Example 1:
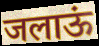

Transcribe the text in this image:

जलाऊं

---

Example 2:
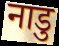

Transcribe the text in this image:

नाडु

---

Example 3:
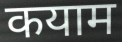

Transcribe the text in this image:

कयाम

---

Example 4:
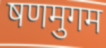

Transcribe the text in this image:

षणमुगम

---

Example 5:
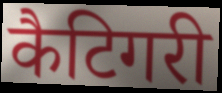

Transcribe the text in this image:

कैटिगरी